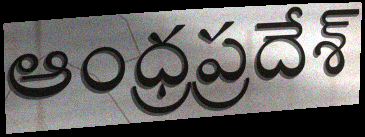
ఆంధ్రప్రదేశ్